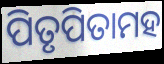
ପିତୃପିତାମହ